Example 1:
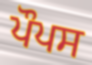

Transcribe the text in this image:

ਪੌਪਸ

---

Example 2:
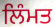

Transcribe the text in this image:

ਲਿੰਮਤ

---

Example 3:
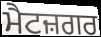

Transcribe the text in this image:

ਮੈਟਜ਼ਗਰ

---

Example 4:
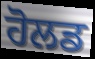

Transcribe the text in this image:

ਹੋਲਡ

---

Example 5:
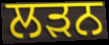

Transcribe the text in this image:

ਲੜਨ